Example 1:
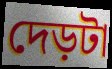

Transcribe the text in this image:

দেড়টা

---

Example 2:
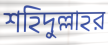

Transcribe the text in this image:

শহিদুল্লাহর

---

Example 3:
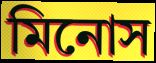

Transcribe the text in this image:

মিনোস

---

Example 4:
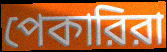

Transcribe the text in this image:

পেকারিরা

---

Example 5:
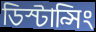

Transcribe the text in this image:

ডিস্টান্সিং